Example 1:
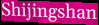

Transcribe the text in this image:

Shijingshan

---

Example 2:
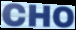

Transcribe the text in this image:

CHO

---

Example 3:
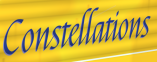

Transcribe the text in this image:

Constellations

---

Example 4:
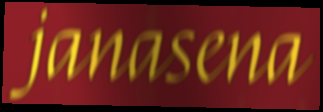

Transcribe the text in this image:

janasena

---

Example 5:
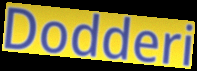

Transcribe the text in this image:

Dodderi